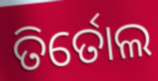
ତିର୍ତୋଲ